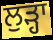
ਲੁੜ੍ਹਾ